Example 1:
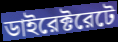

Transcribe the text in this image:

ডাইরেক্টরেটে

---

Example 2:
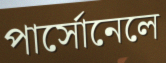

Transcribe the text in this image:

পার্সোনেলে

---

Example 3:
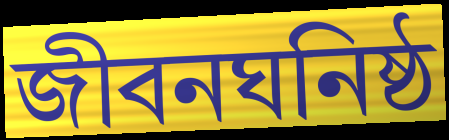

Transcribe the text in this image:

জীবনঘনিষ্ঠ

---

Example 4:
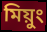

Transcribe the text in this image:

মিয়ুং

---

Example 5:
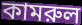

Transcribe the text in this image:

কামরুল